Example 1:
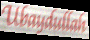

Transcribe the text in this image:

Ubaydullah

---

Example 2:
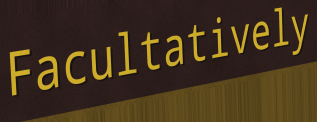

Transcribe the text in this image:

Facultatively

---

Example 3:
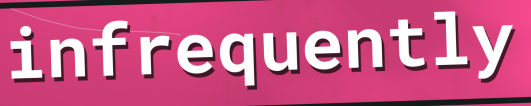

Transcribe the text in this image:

infrequently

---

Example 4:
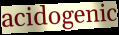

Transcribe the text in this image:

acidogenic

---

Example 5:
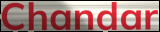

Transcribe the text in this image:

Chandar